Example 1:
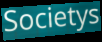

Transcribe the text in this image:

Societys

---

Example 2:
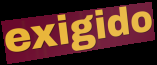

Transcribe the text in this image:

exigido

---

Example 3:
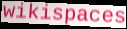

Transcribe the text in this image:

wikispaces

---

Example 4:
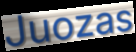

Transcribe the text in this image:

Juozas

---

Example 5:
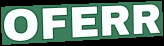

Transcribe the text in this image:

OFERR